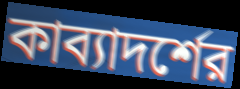
কাব্যাদর্শের